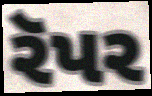
રૅપર